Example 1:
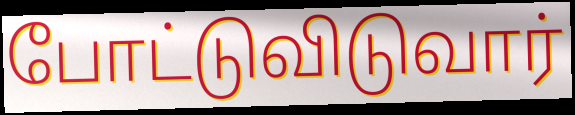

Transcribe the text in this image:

போட்டுவிடுவார்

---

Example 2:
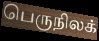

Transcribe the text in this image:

பெருநிலக்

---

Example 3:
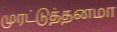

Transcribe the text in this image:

முரட்டுத்தனமா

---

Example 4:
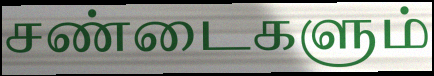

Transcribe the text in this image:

சண்டைகளும்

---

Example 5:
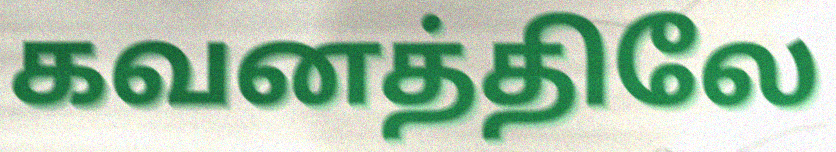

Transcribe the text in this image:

கவனத்திலே